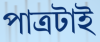
পাত্রটাই